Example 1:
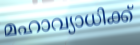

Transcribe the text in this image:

മഹാവ്യാധിക്ക്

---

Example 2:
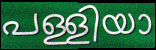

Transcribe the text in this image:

പള്ളിയാ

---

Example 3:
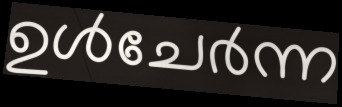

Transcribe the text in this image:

ഉൾചേർന്ന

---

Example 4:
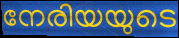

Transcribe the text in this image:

നേരിയയുടെ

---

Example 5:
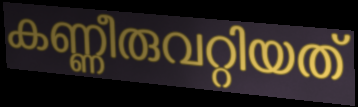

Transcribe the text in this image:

കണ്ണീരുവറ്റിയത്